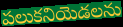
పలుకనియెడలను